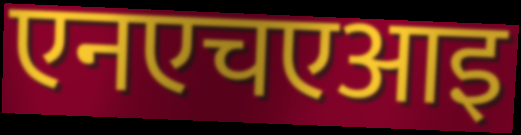
एनएचएआइ